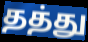
தத்து